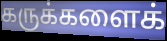
கருக்களைக்